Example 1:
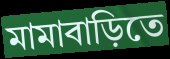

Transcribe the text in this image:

মামাবাড়িতে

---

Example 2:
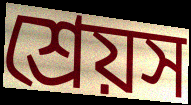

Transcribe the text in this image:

শ্রেয়স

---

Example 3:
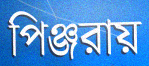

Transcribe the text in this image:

পিঞ্জরায়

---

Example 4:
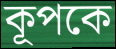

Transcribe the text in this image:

কূপকে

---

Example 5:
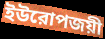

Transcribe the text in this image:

ইউরোপজয়ী